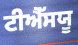
ਟੀਐੱਸਯੂ